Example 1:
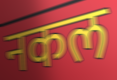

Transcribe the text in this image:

नकल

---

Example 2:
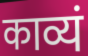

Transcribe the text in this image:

काव्यं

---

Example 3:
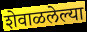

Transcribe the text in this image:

शेवाळलेल्या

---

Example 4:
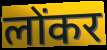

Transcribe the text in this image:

लोंकर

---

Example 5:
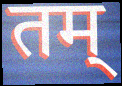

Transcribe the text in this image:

तम्